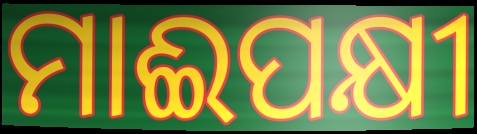
ମାଈପକ୍ଷୀ